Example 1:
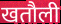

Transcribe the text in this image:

खतौली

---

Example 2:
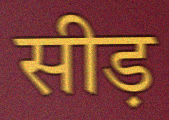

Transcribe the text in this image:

सीड़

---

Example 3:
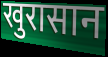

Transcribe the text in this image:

खुरासान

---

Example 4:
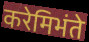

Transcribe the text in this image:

करेमिभंते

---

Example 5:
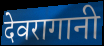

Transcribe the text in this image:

देवरागानी